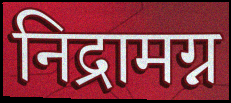
निद्रामग्न